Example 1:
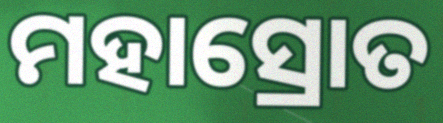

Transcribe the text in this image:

ମହାସ୍ରୋତ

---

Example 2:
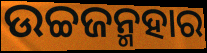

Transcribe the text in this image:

ଉଚ୍ଚଜନ୍ମହାର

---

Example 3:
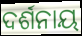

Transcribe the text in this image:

ଦର୍ଶନାୟ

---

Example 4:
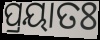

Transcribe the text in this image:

ପ୍ରୟାତଃ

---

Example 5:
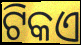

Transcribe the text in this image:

ଟିକଏ